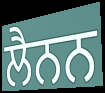
ਲੈਨਨ